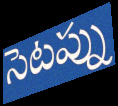
సెటప్ను